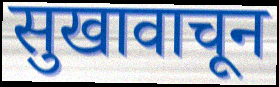
सुखावाचून